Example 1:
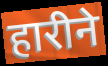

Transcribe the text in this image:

हारीने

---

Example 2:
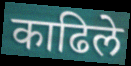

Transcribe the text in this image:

काढिले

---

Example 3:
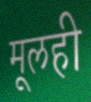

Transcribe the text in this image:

मूलही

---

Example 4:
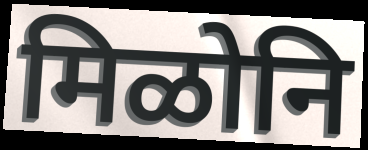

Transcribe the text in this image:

मिळोनि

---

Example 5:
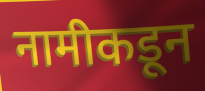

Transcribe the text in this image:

नामीकडून